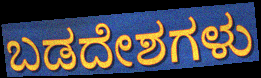
ಬಡದೇಶಗಳು